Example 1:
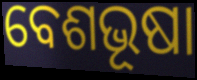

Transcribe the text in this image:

ବେଶଭୂଷା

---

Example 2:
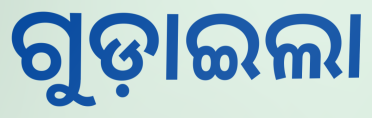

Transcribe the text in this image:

ଗୁଡ଼ାଇଲା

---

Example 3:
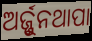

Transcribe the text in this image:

ଅର୍ଜ୍ଜୁନଥାପା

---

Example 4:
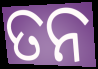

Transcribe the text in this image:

ତନ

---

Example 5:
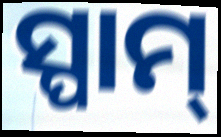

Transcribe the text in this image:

ସ୍ପାମ୍